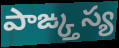
పాఙ్క్తస్య